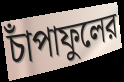
চাঁপাফুলের